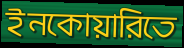
ইনকোয়ারিতে